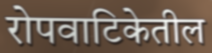
रोपवाटिकेतील